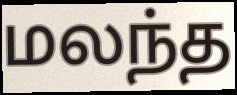
மலந்த